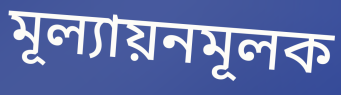
মূল্যায়নমূলক